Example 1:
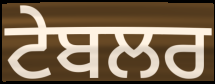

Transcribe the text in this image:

ਟੇਬਲਰ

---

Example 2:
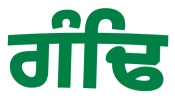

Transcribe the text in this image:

ਗੰਢਿ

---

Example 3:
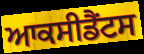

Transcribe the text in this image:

ਆਕਸੀਡੈਂਟਸ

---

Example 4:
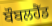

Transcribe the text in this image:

ਬੌਬਲਹੈੱਡ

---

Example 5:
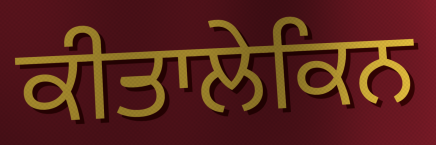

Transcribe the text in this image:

ਕੀਤਾਲੇਕਿਨ